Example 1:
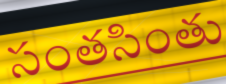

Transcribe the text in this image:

సంతసింతు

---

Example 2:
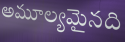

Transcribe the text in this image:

అమూల్యమైనది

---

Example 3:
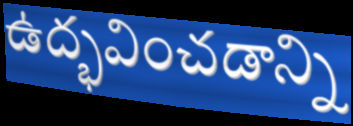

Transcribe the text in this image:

ఉద్భవించడాన్ని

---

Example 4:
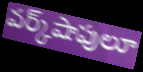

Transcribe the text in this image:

వర్క్‌షాపులూ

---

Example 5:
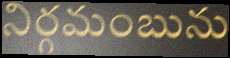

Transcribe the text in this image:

నిర్గమంబును